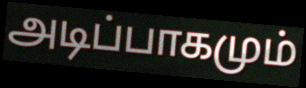
அடிப்பாகமும்